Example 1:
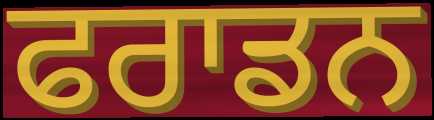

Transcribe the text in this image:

ਫਰਾਡਨ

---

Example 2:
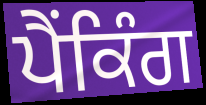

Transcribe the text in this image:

ਪੈਂਕਿੰਗ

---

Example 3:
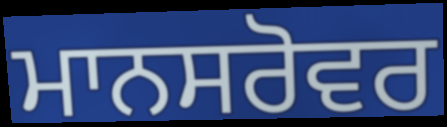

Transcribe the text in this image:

ਮਾਨਸਰੋਵਰ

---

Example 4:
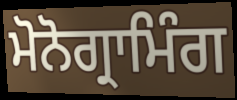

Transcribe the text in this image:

ਮੋਨੋਗ੍ਰਾਮਿੰਗ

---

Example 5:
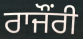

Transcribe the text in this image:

ਰਾਜੌਂਰੀ